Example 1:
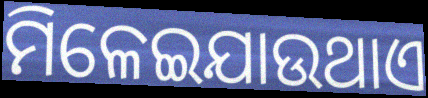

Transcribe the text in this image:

ମିଳେଇଯାଉଥାଏ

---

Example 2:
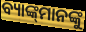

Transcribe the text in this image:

ବ୍ୟାଙ୍କ୍‌ମାନଙ୍କୁ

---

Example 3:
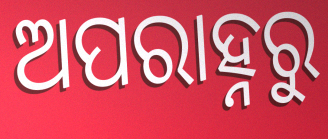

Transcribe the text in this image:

ଅପରାହ୍ନରୁ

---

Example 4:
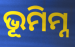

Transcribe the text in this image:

ଭୂମିମ୍ନ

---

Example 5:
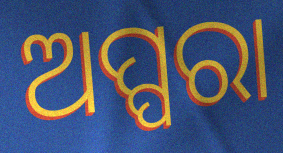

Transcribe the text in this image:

ଅପ୍ପରା